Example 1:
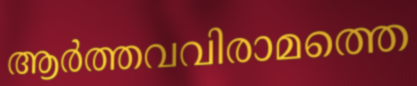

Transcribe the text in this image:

ആർത്തവവിരാമത്തെ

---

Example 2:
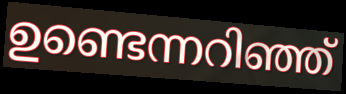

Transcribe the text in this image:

ഉണ്ടെന്നറിഞ്ഞ്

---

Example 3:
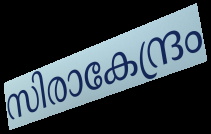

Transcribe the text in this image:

സിരാകേന്ദ്രം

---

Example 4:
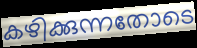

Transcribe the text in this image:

കഴിക്കുന്നതോടെ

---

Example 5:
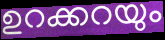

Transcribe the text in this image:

ഉറക്കറയും